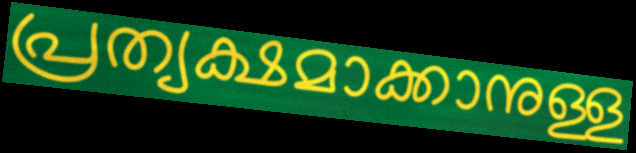
പ്രത്യക്ഷമാക്കാനുള്ള